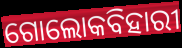
ଗୋଲୋକବିହାରୀ